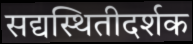
सद्यस्थितीदर्शक